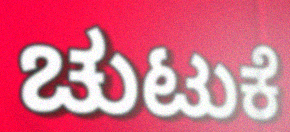
ಚುಟುಕೆ